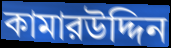
কামারউদ্দিন